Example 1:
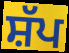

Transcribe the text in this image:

ਸ਼ੱਪ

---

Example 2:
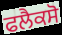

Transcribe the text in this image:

ਫਲੈਕਸੋ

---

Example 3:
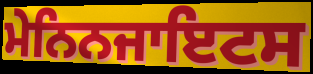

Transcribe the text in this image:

ਮੇਨਿਨਜਾਇਟਸ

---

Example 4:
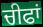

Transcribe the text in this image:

ਚੀਫਾਂ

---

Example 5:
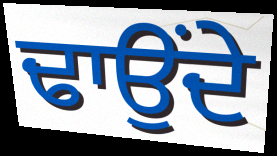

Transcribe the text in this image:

ਢਾਉਂਦੇ